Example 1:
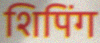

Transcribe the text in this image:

शिपिंग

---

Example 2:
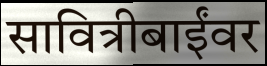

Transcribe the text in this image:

सावित्रीबाईंवर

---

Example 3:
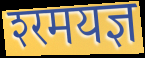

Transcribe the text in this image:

श्रमयज्ञ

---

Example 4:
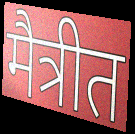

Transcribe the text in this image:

मैत्रीत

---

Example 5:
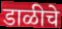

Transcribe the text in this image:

डाळीचे